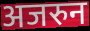
अजरुन